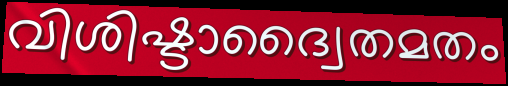
വിശിഷ്ടാദ്വൈതമതം